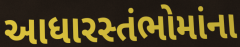
આધારસ્તંભોમાંના